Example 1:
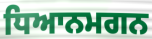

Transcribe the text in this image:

ਧਿਆਨਮਗਨ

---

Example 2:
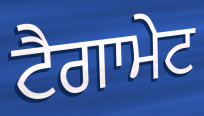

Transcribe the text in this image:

ਟੈਗਾਮੇਟ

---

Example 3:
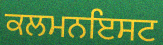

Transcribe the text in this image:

ਕਲਮਨਇਸਟ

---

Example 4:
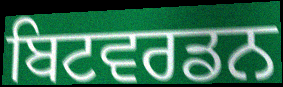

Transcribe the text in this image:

ਬਿਟਵਰਡਨ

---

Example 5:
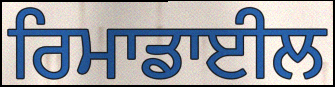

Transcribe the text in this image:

ਰਿਮਾਡਾਈਲ